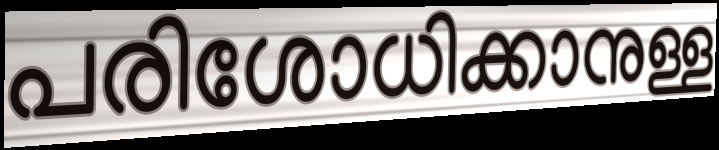
പരിശോധിക്കാനുള്ള